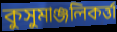
কুসুমাঞ্জলিকর্ত্তা